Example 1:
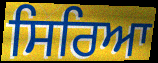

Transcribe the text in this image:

ਸਿਰਿਆ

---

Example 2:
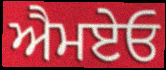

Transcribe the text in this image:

ਐਮਏਓ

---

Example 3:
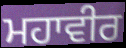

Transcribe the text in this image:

ਮਹਾਵੀਰ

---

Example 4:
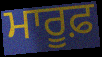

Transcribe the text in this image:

ਮਾਰੂਫ਼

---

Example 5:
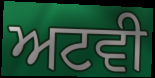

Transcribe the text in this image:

ਅਟਵੀ